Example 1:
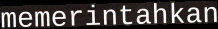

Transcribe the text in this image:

memerintahkan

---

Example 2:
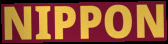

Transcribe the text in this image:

NIPPON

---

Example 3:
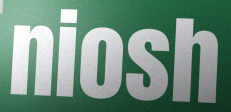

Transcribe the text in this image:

niosh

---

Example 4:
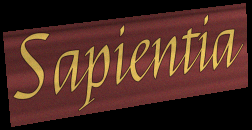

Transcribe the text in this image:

Sapientia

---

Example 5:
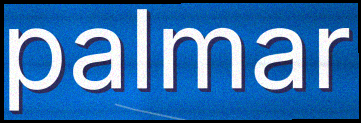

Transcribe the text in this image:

palmar